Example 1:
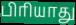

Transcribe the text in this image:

பிரியாது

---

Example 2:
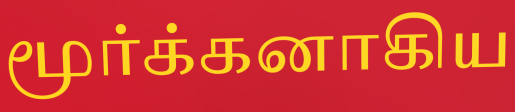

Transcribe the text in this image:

மூர்க்கனாகிய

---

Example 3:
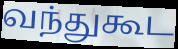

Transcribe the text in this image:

வந்துகூட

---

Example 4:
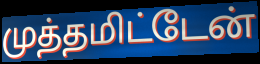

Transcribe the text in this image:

முத்தமிட்டேன்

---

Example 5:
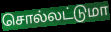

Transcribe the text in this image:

சொல்லட்டுமா